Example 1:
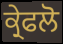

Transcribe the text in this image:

ਕ੍ਰੇਫਲੋ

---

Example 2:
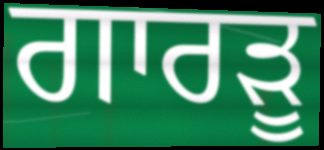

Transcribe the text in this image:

ਗਾਰੜੂ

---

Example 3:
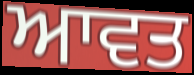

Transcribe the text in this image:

ਆਵਤ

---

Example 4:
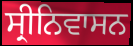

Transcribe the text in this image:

ਸ੍ਰੀਨਿਵਾਸਨ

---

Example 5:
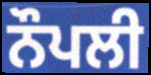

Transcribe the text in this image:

ਨੌਪਲੀ